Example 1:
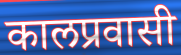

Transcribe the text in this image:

कालप्रवासी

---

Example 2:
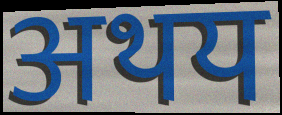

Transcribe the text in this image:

अथय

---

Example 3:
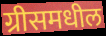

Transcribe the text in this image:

ग्रीसमधील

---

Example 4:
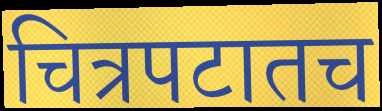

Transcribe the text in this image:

चित्रपटातच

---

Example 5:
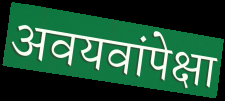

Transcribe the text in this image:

अवयवांपेक्षा